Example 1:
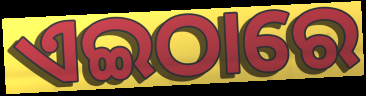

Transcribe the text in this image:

ଏଇଠାରେ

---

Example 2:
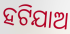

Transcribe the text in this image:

ହଟିଯାଅ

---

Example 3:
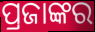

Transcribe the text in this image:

ପ୍ରଜାଙ୍କର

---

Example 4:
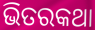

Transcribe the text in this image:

ଭିତରକଥା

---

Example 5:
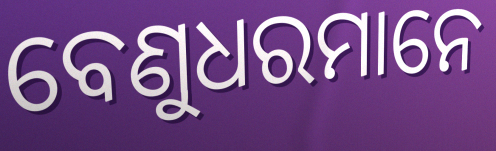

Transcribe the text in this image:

ବେଣୁଧରମାନେ